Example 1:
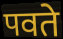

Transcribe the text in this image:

पवते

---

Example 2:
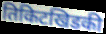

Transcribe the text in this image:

तिकिटखिडकी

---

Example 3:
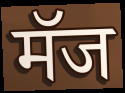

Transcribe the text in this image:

मॅज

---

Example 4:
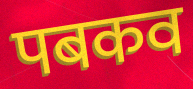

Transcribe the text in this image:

पबकव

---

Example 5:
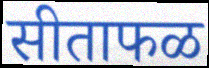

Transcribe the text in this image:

सीताफळ